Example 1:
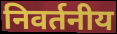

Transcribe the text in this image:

निवर्तनीय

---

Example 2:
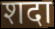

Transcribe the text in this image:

शदा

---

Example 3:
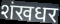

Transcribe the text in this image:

शंखधर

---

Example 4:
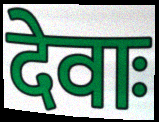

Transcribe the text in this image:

देवाः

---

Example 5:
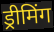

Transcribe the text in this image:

ड्रीमिंग